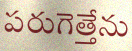
పరుగెత్తేను